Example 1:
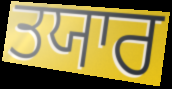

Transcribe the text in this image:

ਤਯਾਰ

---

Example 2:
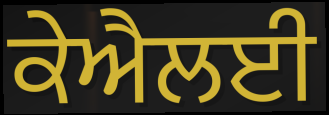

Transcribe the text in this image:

ਕੇਐਲਈ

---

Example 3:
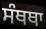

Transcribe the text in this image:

ਸੰਥਥਾ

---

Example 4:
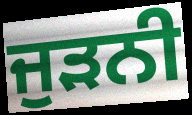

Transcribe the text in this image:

ਜੁੜਨੀ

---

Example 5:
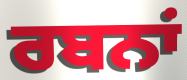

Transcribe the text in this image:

ਰਬਨਾਂ